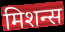
मिशन्स